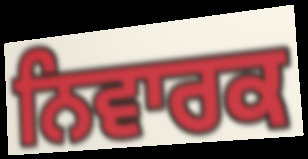
ਨਿਵਾਰਕ